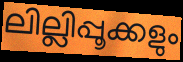
ലില്ലിപ്പൂക്കളും